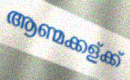
ആണ്മക്കള്ക്ക്